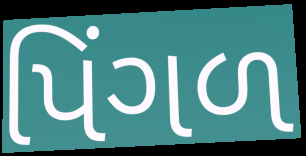
પિંગળ